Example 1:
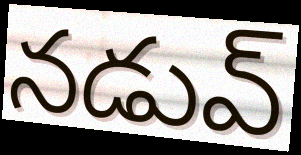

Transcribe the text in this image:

నడువ్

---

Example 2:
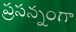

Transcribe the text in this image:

ప్రసన్నంగా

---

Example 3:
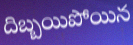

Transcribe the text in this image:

దిబ్బయిపోయిన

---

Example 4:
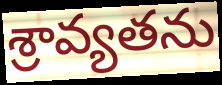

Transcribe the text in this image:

శ్రావ్యతను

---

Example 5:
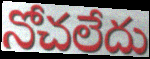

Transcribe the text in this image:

నోచలేదు